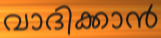
വാദിക്കാൻ